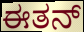
ಈತನ್